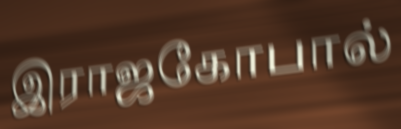
இராஜகோபால்